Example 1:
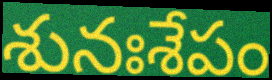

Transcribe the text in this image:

శునఃశేపం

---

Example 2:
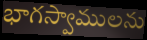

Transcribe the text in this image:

భాగస్వాములను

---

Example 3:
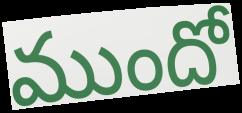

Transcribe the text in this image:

ముందో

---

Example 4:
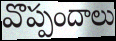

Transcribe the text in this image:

వొప్పందాలు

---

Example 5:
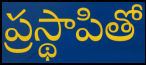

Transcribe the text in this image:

ప్రస్థాపితో